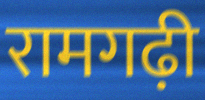
रामगढ़ी